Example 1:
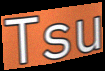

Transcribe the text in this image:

Tsu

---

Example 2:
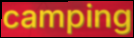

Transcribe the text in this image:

camping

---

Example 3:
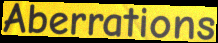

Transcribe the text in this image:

Aberrations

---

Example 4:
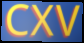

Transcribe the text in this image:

CXV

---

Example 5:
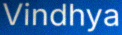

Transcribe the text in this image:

Vindhya